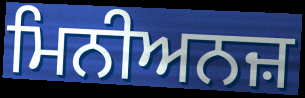
ਮਿਨੀਅਨਜ਼